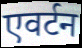
एवर्टन